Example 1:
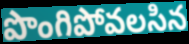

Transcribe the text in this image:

పొంగిపోవలసిన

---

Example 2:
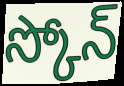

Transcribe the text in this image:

స్కోన్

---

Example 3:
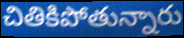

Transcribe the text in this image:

చితికిపోతున్నారు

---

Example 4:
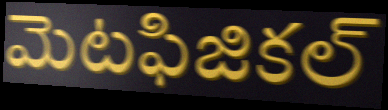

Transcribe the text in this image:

మెటఫిజికల్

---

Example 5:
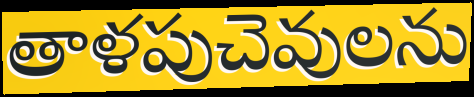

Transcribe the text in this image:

తాళపుచెవులను